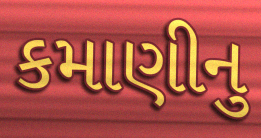
કમાણીનુ